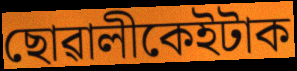
ছোৱালীকেইটাক